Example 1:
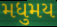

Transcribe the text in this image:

મધુમય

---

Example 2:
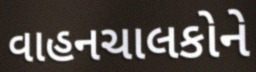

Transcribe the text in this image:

વાહનચાલકોને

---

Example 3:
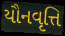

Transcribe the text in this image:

યૌનવૃત્તિ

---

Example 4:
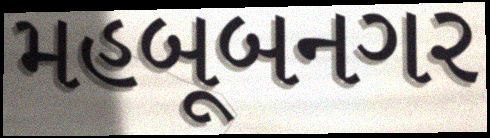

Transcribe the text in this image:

મહબૂબનગર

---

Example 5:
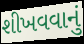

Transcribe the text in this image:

શીખવવાનું